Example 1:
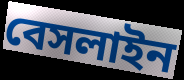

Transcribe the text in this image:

বেসলাইন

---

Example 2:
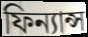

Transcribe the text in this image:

ফিন্যান্স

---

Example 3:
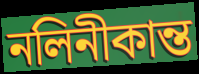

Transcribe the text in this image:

নলিনীকান্ত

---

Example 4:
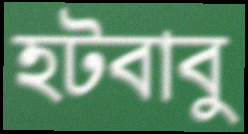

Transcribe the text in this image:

হটবাবু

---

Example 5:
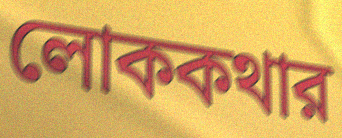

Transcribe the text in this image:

লোককথার